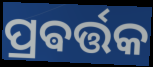
ପ୍ରଵର୍ତ୍ତକ